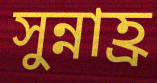
সুন্নাহ্র